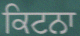
ਕਿਟਨਾ